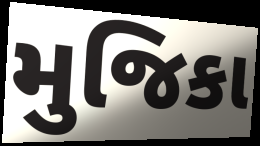
મુજિકા